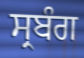
ਸ੍ਰਬੰਗ